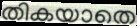
തികയാതെ